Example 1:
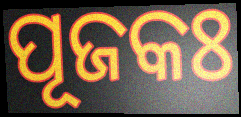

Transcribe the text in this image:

ପୂଜକଃ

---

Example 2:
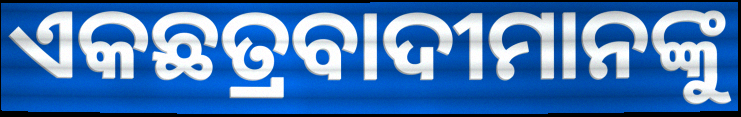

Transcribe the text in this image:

ଏକଛତ୍ରବାଦୀମାନଙ୍କୁ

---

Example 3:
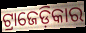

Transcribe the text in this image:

ଟ୍ରାଜେଡ଼ିକାର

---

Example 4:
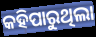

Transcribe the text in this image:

କହିପାରୁଥିଲା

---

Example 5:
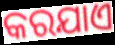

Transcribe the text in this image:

କରଯାଏ